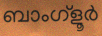
ബാംഗ്ളൂർ